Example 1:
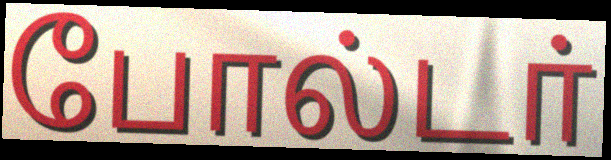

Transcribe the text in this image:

போல்டர்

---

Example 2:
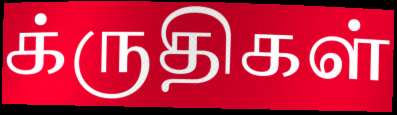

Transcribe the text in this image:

க்ருதிகள்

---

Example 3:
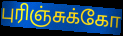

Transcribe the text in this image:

புரிஞ்சுக்கோ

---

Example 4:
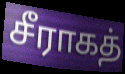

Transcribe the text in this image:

சீராகத்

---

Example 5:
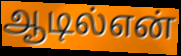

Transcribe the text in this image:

ஆடில்என்